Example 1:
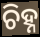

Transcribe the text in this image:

ଚିହ୍ନ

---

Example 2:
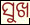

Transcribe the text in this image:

ସୁଖ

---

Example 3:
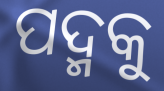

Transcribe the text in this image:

ପଦ୍ମକୁ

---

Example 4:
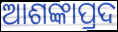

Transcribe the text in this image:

ଆଶଙ୍କାପ୍ରଦ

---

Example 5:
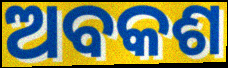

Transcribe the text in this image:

ଅବକଶ